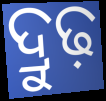
ଦ୍ରୁଢ଼